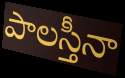
పాలస్తీనా